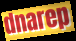
dnarep